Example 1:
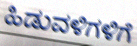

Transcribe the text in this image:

ಹಿಡುವಳಿಗಳಿಗೆ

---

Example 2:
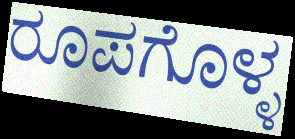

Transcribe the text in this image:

ರೂಪಗೊಳ್ಳ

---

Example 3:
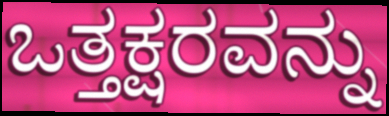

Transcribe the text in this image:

ಒತ್ತಕ್ಷರವನ್ನು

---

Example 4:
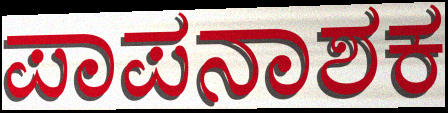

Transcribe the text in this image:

ಪಾಪನಾಶಕ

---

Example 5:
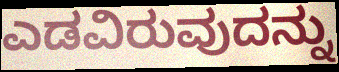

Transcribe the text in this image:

ಎಡವಿರುವುದನ್ನು